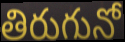
తిరుగునో